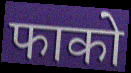
फाको